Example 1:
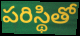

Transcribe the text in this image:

పరిస్థితో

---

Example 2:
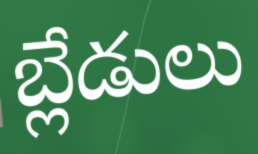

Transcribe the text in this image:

బ్లేడులు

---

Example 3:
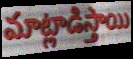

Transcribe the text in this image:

మాట్లాడిస్తాయి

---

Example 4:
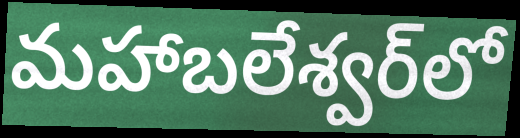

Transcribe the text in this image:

మహాబలేశ్వర్‌లో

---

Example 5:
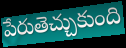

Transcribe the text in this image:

పేరుతెచ్చుకుంది